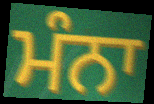
ਮੰਨਾ